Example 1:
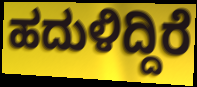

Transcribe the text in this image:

ಹದುಳಿದ್ದಿರೆ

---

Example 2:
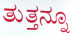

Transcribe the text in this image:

ತುತ್ತನ್ನೂ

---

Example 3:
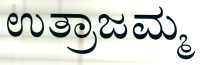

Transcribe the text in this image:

ಉತ್ರಾಜಮ್ಮ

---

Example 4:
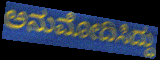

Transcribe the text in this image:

ಅನುಮೋದಿಸಿದ್ದು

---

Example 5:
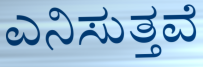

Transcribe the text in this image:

ಎನಿಸುತ್ತವೆ